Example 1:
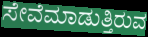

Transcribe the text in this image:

ಸೇವೆಮಾಡುತ್ತಿರುವ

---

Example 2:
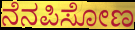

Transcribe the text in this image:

ನೆನಪಿಸೋಣ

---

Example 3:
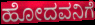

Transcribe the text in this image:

ಹೋದವನಿಗೆ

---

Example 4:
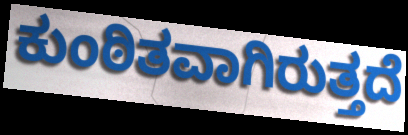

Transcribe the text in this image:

ಕುಂಠಿತವಾಗಿರುತ್ತದೆ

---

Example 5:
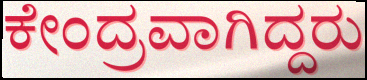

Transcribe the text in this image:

ಕೇಂದ್ರವಾಗಿದ್ದರು